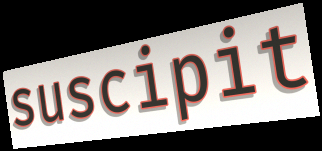
suscipit